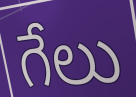
గేలు